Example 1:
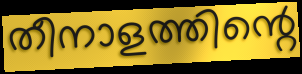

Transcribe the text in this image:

തീനാളത്തിന്റെ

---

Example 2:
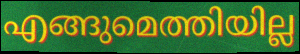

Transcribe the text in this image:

എങ്ങുമെത്തിയില്ല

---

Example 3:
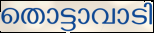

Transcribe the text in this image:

തൊട്ടാവാടി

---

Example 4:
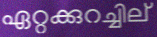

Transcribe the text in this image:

ഏറ്റക്കുറച്ചില്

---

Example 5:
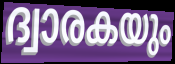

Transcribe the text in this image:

ദ്വാരകയും